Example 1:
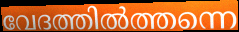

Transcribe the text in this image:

വേദത്തിൽത്തന്നെ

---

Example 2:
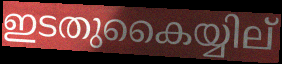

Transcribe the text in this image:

ഇടതുകൈയ്യില്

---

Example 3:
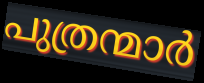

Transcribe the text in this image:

പുത്രന്മാർ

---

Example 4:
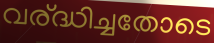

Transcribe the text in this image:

വര്ദ്ധിച്ചതോടെ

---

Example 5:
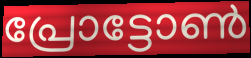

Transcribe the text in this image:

പ്രോട്ടോൺ